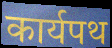
कार्यपथ